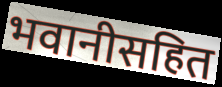
भवानीसहित